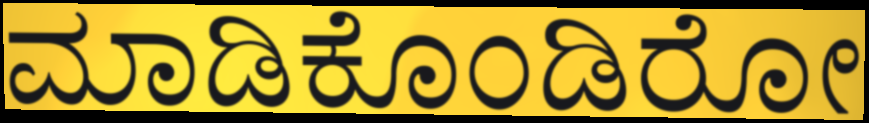
ಮಾಡಿಕೊಂಡಿರೋ